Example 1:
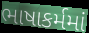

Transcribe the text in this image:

ભાષાકર્મમાં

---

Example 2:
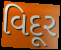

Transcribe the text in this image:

વિદૂર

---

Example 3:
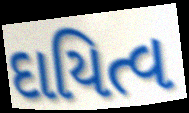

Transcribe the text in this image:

દાયિત્વ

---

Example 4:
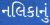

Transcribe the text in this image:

નલિકાનું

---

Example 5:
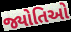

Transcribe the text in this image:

જ્યોતિઓ